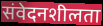
संवेदनशीलता